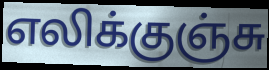
எலிக்குஞ்சு